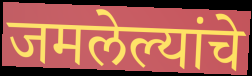
जमलेल्यांचे